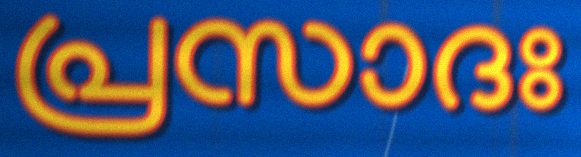
പ്രസാദഃ